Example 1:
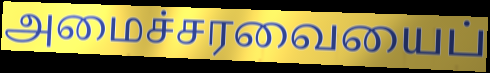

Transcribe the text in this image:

அமைச்சரவையைப்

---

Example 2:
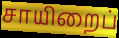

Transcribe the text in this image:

சாயிறைப்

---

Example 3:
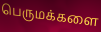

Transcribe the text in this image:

பெருமக்களை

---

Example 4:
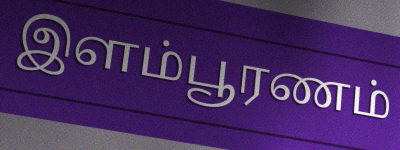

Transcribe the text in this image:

இளம்பூரணம்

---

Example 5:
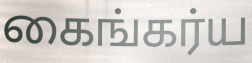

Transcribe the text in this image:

கைங்கர்ய